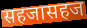
सहजासहज